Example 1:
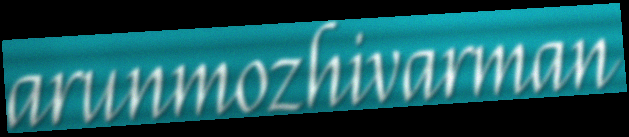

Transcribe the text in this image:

arunmozhivarman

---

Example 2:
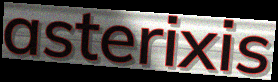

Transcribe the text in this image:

asterixis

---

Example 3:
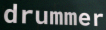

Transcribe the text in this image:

drummer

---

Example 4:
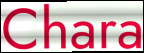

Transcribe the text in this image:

Chara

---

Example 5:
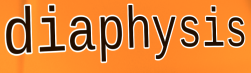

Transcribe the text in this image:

diaphysis